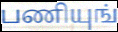
பணியுங்